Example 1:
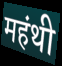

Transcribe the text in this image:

महंथी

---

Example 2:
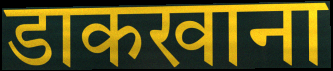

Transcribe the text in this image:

डाकखाना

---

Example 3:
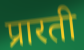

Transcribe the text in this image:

प्रारती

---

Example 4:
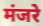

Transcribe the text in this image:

मंजरे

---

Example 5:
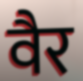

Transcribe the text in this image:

वैर